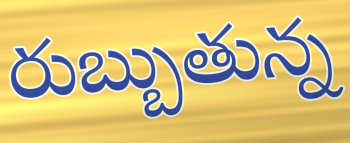
రుబ్బుతున్న